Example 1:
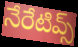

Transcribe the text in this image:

నేరేటివ్స్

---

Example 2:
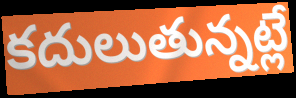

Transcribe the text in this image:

కదులుతున్నట్లే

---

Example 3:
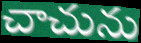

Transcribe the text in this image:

చాచును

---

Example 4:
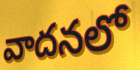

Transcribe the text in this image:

వాదనలో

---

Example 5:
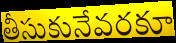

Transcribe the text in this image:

తీసుకునేవరకూ